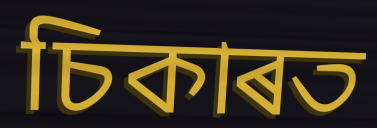
চিকাৰত